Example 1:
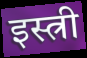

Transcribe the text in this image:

इस्त्री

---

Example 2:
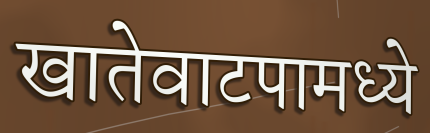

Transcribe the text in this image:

खातेवाटपामध्ये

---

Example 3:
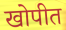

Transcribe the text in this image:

खोपीत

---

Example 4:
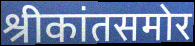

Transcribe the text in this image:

श्रीकांतसमोर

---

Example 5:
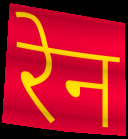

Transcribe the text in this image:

रेन